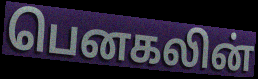
பெனகலின்